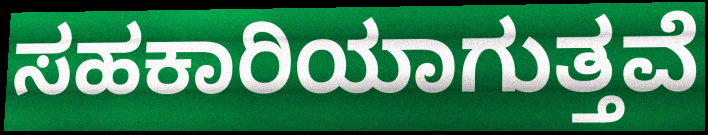
ಸಹಕಾರಿಯಾಗುತ್ತವೆ